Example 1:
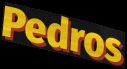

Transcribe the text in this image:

Pedros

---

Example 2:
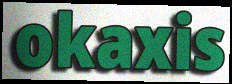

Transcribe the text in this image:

okaxis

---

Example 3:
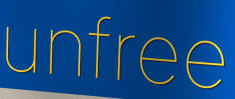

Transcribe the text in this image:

unfree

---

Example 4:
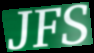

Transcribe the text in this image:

JFS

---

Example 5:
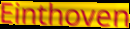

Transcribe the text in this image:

Einthoven